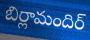
బిర్లామందిర్